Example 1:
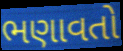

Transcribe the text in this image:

ભણાવતો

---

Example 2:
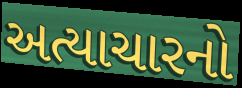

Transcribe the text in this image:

અત્યાચારનો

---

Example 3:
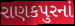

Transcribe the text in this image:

રાણકપુરનાં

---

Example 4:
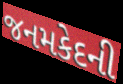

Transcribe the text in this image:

જનમકેદની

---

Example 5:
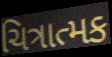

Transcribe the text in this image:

ચિત્રાત્મક